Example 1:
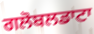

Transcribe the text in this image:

ਗਲੋਬਲਡਾਟਾ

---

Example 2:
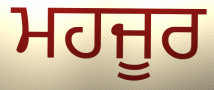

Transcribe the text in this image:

ਮਹਜੂਰ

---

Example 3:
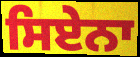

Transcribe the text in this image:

ਸਿਏਨਾ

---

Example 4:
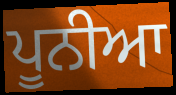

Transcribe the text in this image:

ਪੂਨੀਆ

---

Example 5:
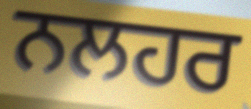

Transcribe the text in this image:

ਨਲਹਰ